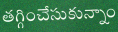
తగ్గించేసుకున్నాం